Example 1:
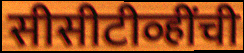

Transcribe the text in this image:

सीसीटीव्हींची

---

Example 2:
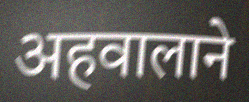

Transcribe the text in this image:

अहवालाने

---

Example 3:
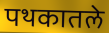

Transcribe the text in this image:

पथकातले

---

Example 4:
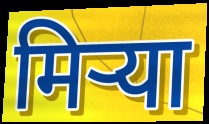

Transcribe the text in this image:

मिऱ्या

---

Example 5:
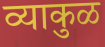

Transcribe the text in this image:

व्याकुळ